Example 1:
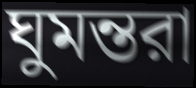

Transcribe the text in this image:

ঘুমন্তরা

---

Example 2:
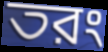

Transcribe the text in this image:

তরং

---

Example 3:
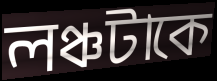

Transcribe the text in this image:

লঞ্চটাকে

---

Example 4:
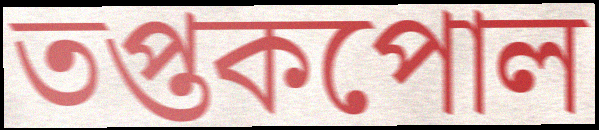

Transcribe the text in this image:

তপ্তকপোল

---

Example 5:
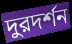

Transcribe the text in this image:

দুরদর্শন